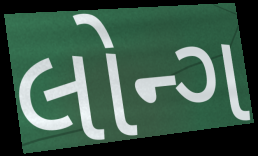
લોન્ગ